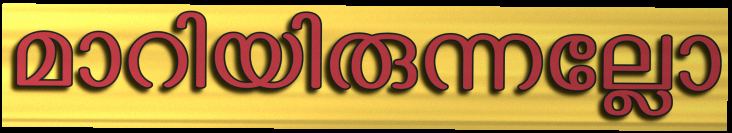
മാറിയിരുന്നല്ലോ